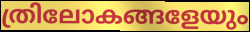
ത്രിലോകങ്ങളേയും